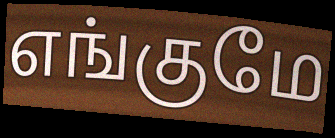
எங்குமே